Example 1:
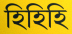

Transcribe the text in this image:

হিহিহি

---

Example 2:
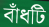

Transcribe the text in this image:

বাঁধটি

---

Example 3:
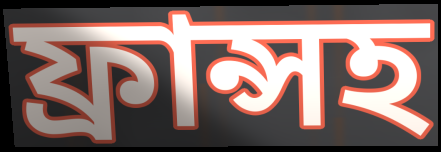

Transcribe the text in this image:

ফ্রান্সহ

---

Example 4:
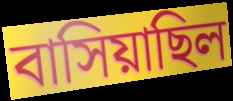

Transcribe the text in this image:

বাসিয়াছিল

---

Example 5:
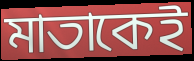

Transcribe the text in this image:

মাতাকেই